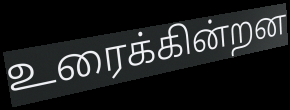
உரைக்கின்றன